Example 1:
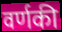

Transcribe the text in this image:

वर्णकी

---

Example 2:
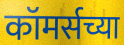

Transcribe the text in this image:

कॉमर्सच्या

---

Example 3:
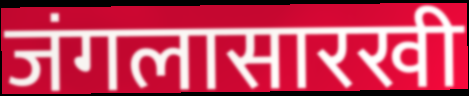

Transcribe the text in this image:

जंगलासारखी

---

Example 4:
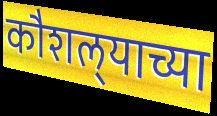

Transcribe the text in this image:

कौशल्याच्या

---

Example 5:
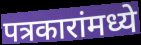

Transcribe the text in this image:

पत्रकारांमध्ये